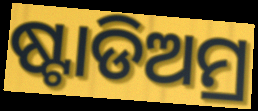
ଷ୍ଟାଡିଅମ୍ର